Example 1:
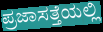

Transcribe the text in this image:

ಪ್ರಜಾಸತ್ತೆಯಲ್ಲಿ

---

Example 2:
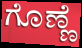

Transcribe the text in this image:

ಗೊಣ್ಣೆ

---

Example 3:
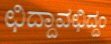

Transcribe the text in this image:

ಛಿದ್ದಾವಛಿದ್ದಂ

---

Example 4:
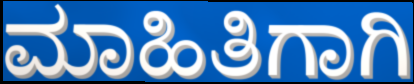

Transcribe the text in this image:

ಮಾಹಿತಿಗಾಗಿ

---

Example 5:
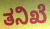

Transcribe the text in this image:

ತನಿಖೆ